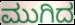
ಮುಗಿದ